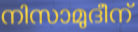
നിസാമുദീന്